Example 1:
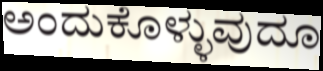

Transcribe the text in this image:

ಅಂದುಕೊಳ್ಳುವುದೂ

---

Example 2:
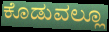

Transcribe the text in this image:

ಕೊಡುವಲ್ಲೂ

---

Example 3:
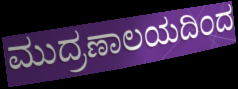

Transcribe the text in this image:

ಮುದ್ರಣಾಲಯದಿಂದ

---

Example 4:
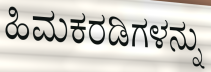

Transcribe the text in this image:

ಹಿಮಕರಡಿಗಳನ್ನು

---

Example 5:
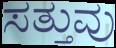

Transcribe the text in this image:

ಸತ್ತುವು